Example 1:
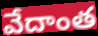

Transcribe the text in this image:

వేదాంత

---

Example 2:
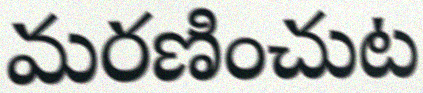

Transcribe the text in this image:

మరణించుట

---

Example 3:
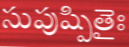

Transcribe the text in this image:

సుపుష్పితైః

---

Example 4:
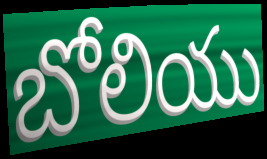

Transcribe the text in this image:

బోలియు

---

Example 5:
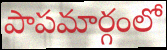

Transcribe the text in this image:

పాపమార్గంలో